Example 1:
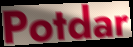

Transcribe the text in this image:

Potdar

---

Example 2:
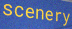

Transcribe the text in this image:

scenery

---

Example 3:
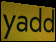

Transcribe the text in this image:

yadd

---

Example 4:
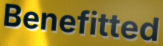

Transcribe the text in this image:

Benefitted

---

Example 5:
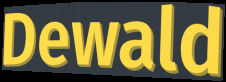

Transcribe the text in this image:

Dewald